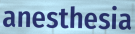
anesthesia